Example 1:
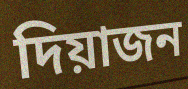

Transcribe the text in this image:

দিয়াজন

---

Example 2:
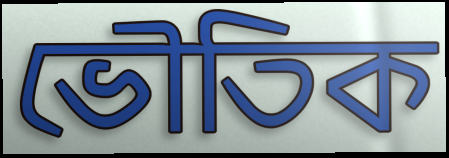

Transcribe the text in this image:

ভৌতিক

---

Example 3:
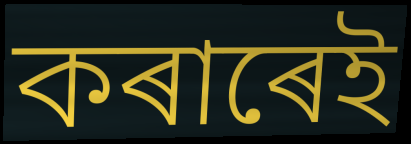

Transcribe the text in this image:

কৰাৰেই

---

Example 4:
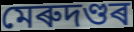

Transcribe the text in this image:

মেৰুদণ্ডৰ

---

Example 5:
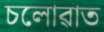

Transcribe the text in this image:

চলোৱাত